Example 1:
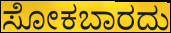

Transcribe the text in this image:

ಸೋಕಬಾರದು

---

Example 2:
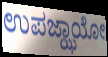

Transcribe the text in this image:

ಉಪಜ್ಝಾಯೋ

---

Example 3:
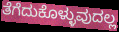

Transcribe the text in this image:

ತೆಗೆದುಕೊಳ್ಳುವುದಲ್ಲ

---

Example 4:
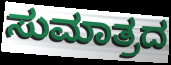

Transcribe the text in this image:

ಸುಮಾತ್ರದ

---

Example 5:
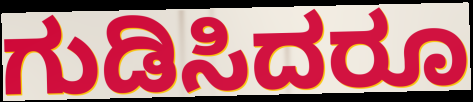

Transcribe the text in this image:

ಗುಡಿಸಿದರೂ